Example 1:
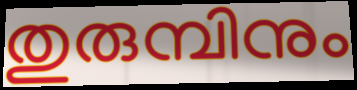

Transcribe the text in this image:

തുരുമ്പിനും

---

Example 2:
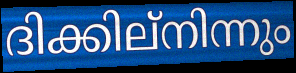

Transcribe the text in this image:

ദിക്കില്നിന്നും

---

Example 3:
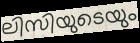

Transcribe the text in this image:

ലിസിയുടെയും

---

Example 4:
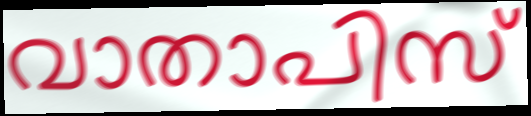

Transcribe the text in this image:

വാതാപിസ്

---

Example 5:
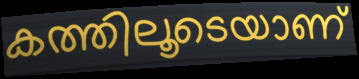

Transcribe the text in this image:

കത്തിലൂടെയാണ്